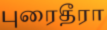
புரைதீரா